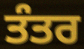
ਤੰਤਰ